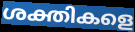
ശക്തികളെ